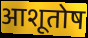
आशूतोष